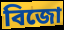
বিজো